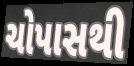
ચોપાસથી